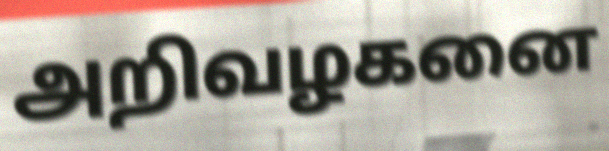
அறிவழகனை